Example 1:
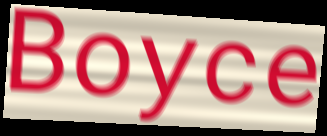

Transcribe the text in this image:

Boyce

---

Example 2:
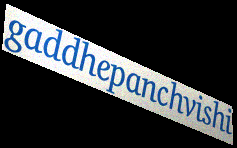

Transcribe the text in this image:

gaddhepanchvishi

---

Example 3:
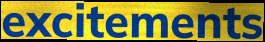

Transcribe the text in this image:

excitements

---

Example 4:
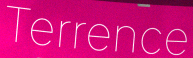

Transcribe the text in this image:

Terrence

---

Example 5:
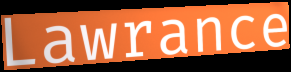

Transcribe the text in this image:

Lawrance